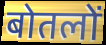
बोतलों